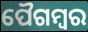
ପୈଗମ୍ବର